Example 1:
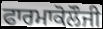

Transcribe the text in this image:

ਫਾਰਮਾਕੋਲੌਜੀ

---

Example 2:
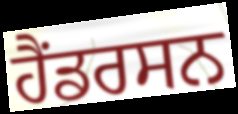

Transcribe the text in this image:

ਹੈਂਡਰਸਨ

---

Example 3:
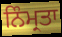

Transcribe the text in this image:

ਨਿੰਮ੍ਰਤਾ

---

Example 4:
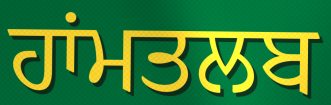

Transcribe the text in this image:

ਹਾਂਮਤਲਬ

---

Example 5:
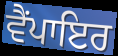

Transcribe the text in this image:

ਵੈਂਪਾਇਰ